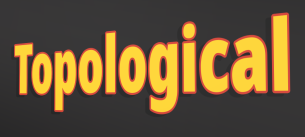
Topological